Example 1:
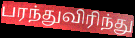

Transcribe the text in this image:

பரந்துவிரிந்து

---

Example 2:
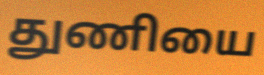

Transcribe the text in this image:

துணியை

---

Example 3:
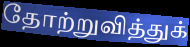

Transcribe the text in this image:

தோற்றுவித்துக்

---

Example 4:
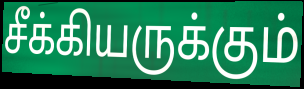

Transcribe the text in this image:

சீக்கியருக்கும்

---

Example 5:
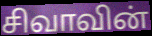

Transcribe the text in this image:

சிவாவின்